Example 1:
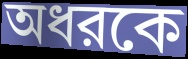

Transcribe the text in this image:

অধরকে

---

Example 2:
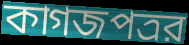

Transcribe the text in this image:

কাগজপত্রর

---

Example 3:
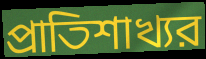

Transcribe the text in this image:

প্রাতিশাখ্যর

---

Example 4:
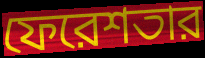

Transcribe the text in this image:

ফেরেশতার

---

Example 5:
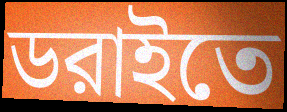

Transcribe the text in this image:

ডরাইতে